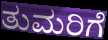
ತುಮರಿಗೆ